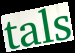
tals